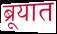
ब्रूयात